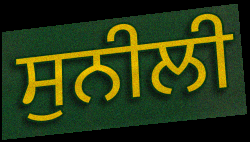
ਸੁਨੀਲੀ